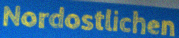
Nordostlichen